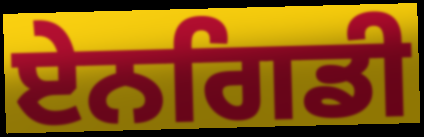
ਏਨਗਿਡੀ